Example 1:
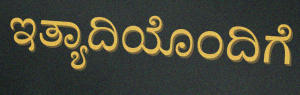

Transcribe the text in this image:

ಇತ್ಯಾದಿಯೊಂದಿಗೆ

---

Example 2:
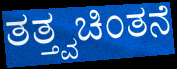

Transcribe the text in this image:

ತತ್ತ್ವಚಿಂತನೆ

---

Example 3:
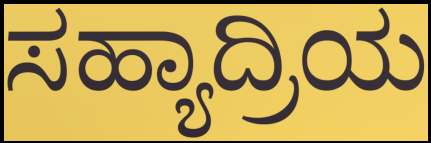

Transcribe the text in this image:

ಸಹ್ಯಾದ್ರಿಯ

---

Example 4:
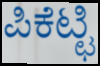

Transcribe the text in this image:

ಪಿಕೆಟ್ಟಿ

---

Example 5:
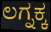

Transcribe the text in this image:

ಲಗ್ನಕ್ಕ